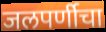
जलपर्णीचा